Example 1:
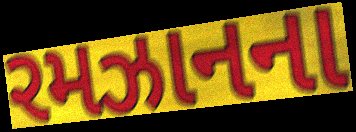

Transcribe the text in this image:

રમઝાનના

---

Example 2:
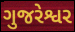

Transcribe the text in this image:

ગુજરેશ્વર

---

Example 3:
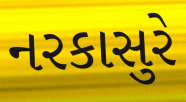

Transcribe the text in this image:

નરકાસુરે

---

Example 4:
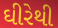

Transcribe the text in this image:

ઘીરેથી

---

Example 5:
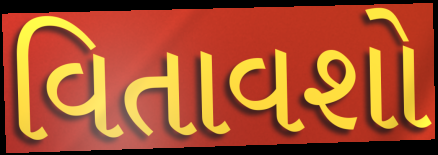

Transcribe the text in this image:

વિતાવશો